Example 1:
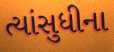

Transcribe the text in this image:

ત્યાંસુધીના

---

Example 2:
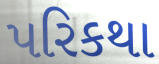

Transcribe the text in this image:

પરિકથા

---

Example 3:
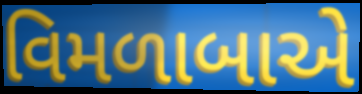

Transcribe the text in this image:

વિમળાબાએ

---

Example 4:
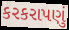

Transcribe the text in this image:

કરકરાપણું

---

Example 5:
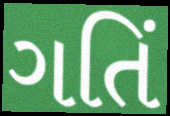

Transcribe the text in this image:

ગતિં